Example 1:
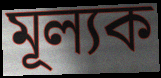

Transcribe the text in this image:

মূল্যক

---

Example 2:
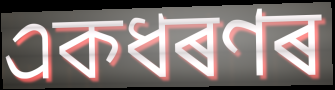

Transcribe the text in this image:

একধৰণৰ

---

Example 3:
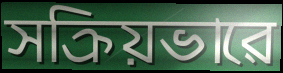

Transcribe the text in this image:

সক্ৰিয়ভাৱে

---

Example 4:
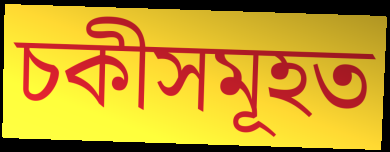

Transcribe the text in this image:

চকীসমূহত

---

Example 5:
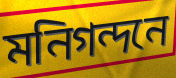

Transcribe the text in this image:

মনিগন্দনে